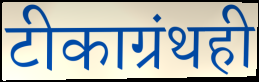
टीकाग्रंथही